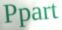
Ppart